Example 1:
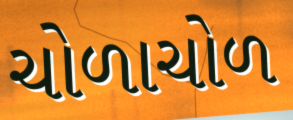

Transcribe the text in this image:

ચોળાચોળ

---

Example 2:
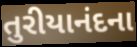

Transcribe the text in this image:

તુરીયાનંદના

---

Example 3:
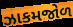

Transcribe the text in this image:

ઝાકમજોળ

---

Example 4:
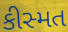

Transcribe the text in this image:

કીસ્મત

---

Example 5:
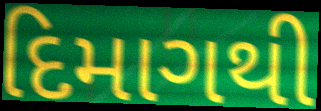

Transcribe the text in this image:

દિમાગથી